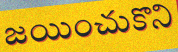
జయించుకొని